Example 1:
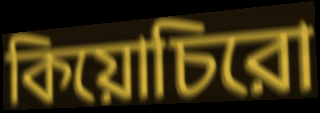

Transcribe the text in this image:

কিয়োচিরো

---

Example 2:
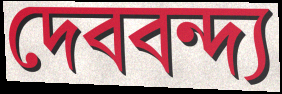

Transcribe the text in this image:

দেববন্দ্য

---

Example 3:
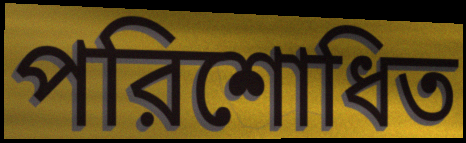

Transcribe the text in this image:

পরিশোধিত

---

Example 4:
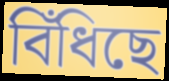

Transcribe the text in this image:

বিঁধিছে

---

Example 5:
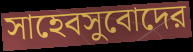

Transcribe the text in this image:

সাহেবসুবোদের